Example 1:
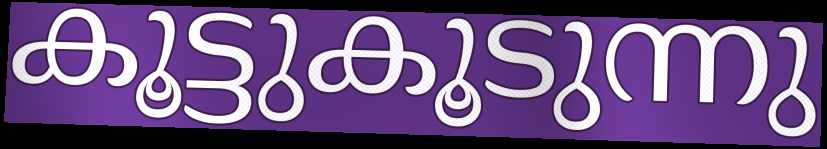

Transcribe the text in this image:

കൂട്ടുകൂടുന്നു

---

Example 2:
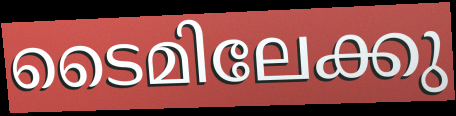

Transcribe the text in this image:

ടൈമിലേക്കു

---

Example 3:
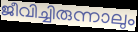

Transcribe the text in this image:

ജീവിച്ചിരുന്നാലും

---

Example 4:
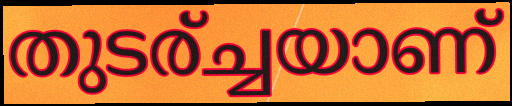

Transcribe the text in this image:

തുടര്ച്ചയാണ്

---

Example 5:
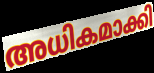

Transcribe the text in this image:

അധികമാക്കി